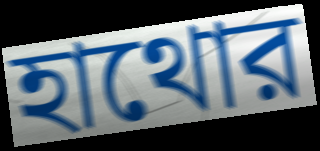
হাথোর